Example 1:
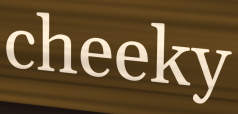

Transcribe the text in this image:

cheeky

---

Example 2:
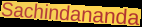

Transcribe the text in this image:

Sachindananda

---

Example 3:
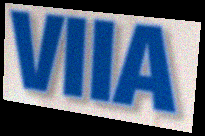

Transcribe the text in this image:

VIIA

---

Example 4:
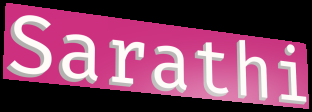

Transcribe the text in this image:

Sarathi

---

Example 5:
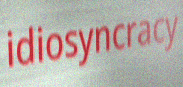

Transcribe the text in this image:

idiosyncracy